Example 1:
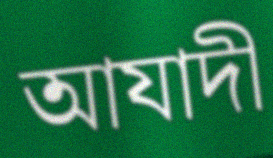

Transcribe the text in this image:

আযাদী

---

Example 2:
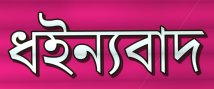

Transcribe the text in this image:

ধইন্যবাদ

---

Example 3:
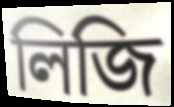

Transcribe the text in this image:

লিজি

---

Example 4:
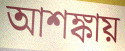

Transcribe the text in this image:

আশঙ্কায়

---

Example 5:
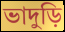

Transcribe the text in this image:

ভাদুড়ি